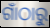
ଗାଁଠାରୁ